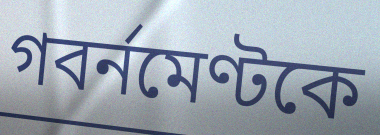
গবর্নমেণ্টকে